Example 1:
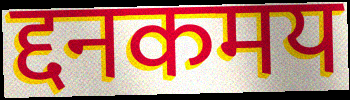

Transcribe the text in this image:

द्दनकमय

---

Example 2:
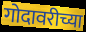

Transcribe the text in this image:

गोदावरीच्या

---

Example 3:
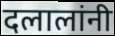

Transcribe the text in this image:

दलालांनी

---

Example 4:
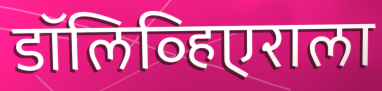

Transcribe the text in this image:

डॉलिव्हिएराला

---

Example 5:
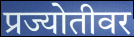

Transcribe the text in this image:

प्रज्योतीवर